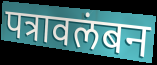
पत्रावलंबन